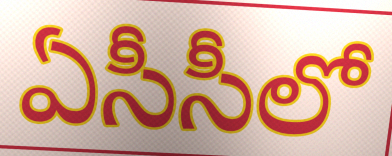
ఏసీసీలో